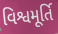
વિશ્વમૂર્તિ